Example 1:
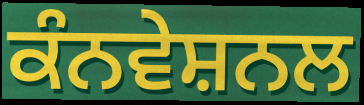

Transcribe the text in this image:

ਕੰਨਵੇਸ਼ਨਲ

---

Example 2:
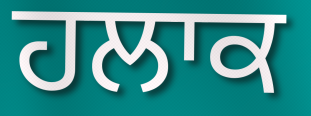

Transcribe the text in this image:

ਹਲਾਕ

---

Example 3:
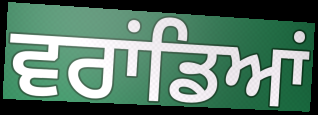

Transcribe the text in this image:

ਵਰਾਂਡਿਆਂ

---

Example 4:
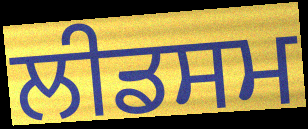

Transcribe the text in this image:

ਲੀਡਸਮ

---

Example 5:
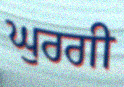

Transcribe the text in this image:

ਘੁਰਗੀ